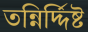
তন্নির্দ্দিষ্ট